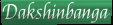
Dakshinbanga